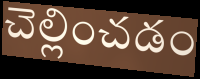
చెల్లించడం